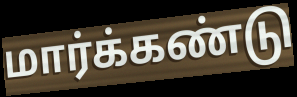
மார்க்கண்டு